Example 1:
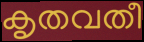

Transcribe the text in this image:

കൃതവതീ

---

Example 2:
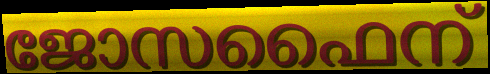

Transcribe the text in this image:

ജോസഫൈന്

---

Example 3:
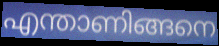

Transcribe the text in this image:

എന്താണിങ്ങനെ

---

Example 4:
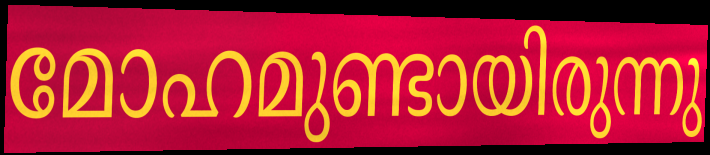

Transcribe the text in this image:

മോഹമുണ്ടായിരുന്നു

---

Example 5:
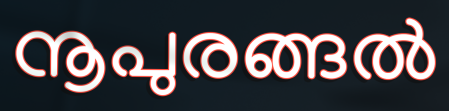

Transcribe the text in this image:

നൂപുരങ്ങൽ